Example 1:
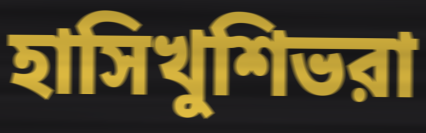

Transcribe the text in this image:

হাসিখুশিভরা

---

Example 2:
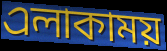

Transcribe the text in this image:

এলাকাময়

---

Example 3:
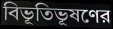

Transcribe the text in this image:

বিভূতিভূষণের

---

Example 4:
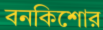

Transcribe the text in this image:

বনকিশোর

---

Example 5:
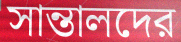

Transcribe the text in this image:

সান্তালদের